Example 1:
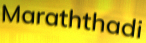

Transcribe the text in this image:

Maraththadi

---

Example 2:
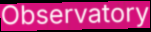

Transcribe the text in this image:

Observatory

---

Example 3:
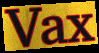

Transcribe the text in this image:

Vax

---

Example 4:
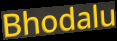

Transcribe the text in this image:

Bhodalu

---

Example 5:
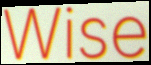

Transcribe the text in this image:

Wise